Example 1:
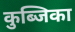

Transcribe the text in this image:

कुब्जिका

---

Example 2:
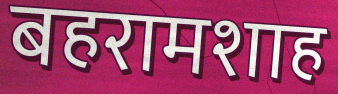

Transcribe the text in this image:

बहरामशाह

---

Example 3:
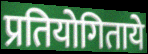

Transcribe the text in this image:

प्रतियोगिताये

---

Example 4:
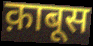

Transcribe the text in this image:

क़ाबूस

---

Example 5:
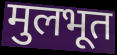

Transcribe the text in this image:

मुलभूत